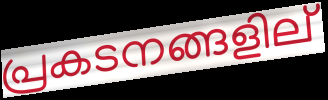
പ്രകടനങ്ങളില്